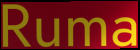
Ruma